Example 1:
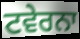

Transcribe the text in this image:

ਟਵੇਰਨਾ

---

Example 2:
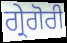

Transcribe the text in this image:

ਗ੍ਰੇਗੋਰੀ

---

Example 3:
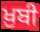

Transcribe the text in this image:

ਖ਼ੁਬੀ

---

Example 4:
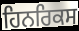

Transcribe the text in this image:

ਹਿਨਰਿਕਸ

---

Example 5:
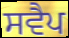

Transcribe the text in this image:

ਸਵੈਪ